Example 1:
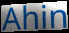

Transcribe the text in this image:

Ahin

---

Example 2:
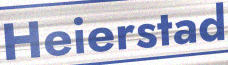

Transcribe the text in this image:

Heierstad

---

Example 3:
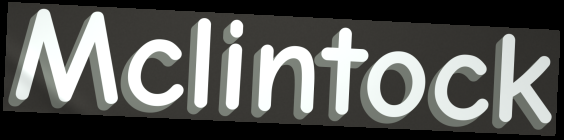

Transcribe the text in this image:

Mclintock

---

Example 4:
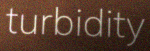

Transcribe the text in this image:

turbidity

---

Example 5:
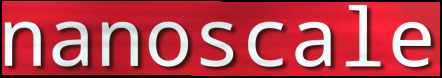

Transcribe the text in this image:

nanoscale